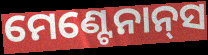
ମେଣ୍ଟେନାନ୍‌ସ